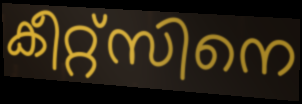
കീറ്റ്സിനെ